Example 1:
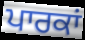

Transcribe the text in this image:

ਪਾਰਕਾਂ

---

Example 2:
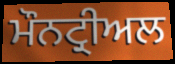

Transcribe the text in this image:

ਮੌਨਟ੍ਰੀਅਲ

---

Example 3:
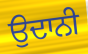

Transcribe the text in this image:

ਉਦਾਨੀ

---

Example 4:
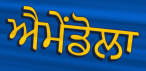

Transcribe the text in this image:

ਐਮੇਂਡੋਲਾ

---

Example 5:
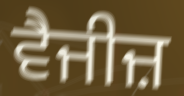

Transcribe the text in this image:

ਵੈਜੀਜ਼